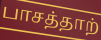
பாசத்தாற்